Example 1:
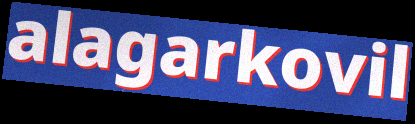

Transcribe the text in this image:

alagarkovil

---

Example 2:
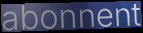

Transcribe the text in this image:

abonnent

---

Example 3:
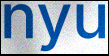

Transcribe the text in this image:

nyu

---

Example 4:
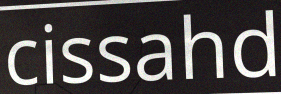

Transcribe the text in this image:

cissahd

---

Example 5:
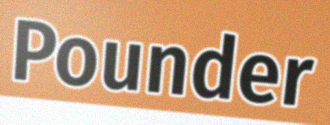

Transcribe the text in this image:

Pounder